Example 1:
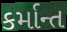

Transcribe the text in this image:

કર્માન્ત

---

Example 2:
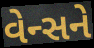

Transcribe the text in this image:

વેન્સને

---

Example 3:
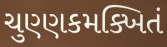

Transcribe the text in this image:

ચુણ્ણકમક્ખિતં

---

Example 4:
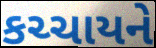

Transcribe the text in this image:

કચ્ચાયને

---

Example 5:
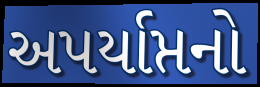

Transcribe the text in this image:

અપર્યાપ્તનો